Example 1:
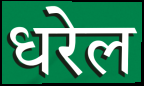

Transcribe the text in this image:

धरेल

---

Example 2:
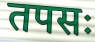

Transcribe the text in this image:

तपसः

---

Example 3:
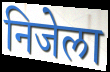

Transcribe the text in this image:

निजेला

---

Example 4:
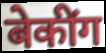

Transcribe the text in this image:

बेकींग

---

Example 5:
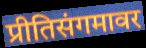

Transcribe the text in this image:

प्रीतिसंगमावर